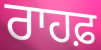
ਰਾਹਫ਼